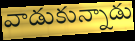
వాడుకున్నాడు